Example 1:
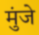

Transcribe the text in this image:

मुंजे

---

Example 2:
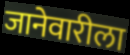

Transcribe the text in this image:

जानेवारीला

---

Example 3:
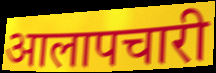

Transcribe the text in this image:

आलापचारी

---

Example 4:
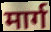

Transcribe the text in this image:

मार्ग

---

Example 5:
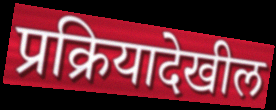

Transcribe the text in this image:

प्रक्रियादेखील